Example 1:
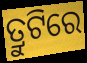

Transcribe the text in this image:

ତ୍ରୁଟିରେ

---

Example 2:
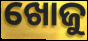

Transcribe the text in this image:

ଖୋଜୁ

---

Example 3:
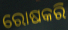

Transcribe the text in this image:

ରୋଷକରି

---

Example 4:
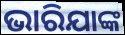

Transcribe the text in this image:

ଭାରିଯାଙ୍କ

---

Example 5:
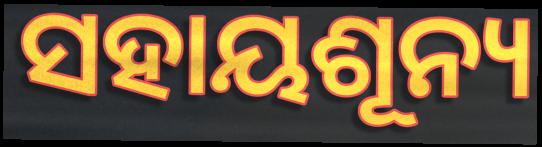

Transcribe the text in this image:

ସହାୟଶୂନ୍ୟ